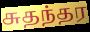
சுதந்தர